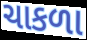
ચાકળા